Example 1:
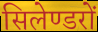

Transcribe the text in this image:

सिलेण्डरों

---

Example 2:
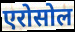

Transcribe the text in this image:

एरोसोल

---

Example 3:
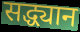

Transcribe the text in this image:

सद्ध्यान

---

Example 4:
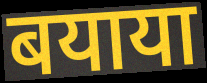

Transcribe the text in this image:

बयाया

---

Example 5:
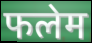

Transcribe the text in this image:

फलेम